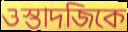
ওস্তাদজিকে